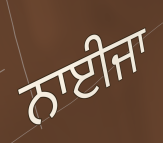
ਨਾਈਜਾ